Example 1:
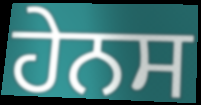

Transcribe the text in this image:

ਹੇਨਸ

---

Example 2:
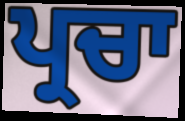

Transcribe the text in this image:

ਪ੍ਰਚਾ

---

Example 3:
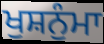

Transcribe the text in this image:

ਖੁਸ਼ਨੁੰਮਾ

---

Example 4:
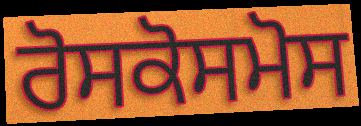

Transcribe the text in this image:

ਰੋਸਕੋਸਮੋਸ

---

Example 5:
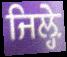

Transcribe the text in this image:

ਜਿਲ਼੍ਹੇ